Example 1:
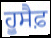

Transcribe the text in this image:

ਹੂਸੈਫ਼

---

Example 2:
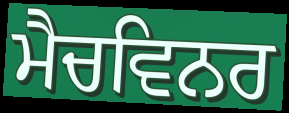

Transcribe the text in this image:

ਮੈਚਵਿਨਰ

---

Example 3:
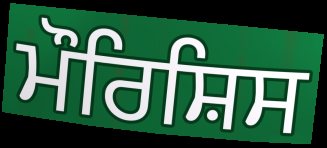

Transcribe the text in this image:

ਮੌਰਿਸ਼ਿਸ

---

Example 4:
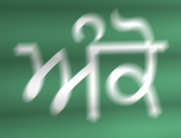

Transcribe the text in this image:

ਅੰਕੋ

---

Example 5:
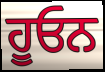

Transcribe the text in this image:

ਹੂਓਨ